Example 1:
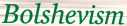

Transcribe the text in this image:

Bolshevism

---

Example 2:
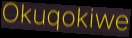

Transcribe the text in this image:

Okuqokiwe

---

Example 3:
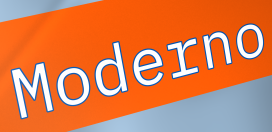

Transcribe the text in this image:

Moderno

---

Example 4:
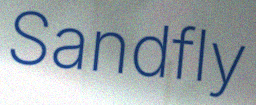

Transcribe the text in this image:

Sandfly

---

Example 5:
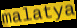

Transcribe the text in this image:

malatya